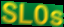
SLOs